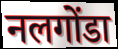
नलगोंडा